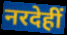
नरदेहीं